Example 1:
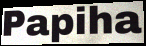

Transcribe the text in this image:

Papiha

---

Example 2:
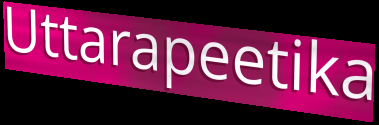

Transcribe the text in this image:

Uttarapeetika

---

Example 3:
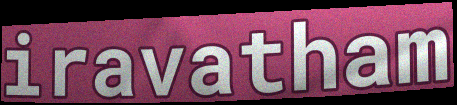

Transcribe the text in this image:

iravatham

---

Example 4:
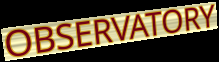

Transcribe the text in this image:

OBSERVATORY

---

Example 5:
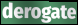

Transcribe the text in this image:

derogate